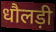
धौलड़ी